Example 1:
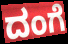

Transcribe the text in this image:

ದಂಗೆ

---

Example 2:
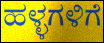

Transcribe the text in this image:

ಹಳ್ಳಗಳಿಗೆ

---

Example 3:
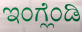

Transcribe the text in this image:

ಇಂಗ್ಲೆಂಡಿ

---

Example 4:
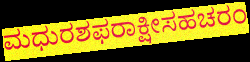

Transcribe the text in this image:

ಮಧುರಶಫರಾಕ್ಷೀಸಹಚರಂ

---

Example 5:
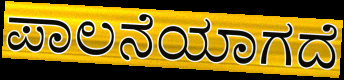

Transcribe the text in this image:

ಪಾಲನೆಯಾಗದೆ